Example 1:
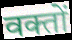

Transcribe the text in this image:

वक्तों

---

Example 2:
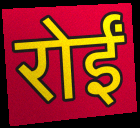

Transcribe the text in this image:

रोईं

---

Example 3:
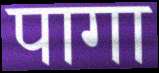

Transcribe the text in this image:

पागा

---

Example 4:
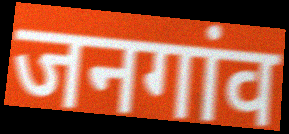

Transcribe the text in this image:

जनगांव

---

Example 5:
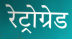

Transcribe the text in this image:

रेट्रोग्रेड